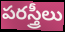
పరస్త్రీలు